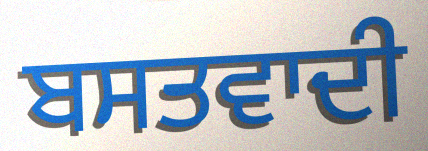
ਬਸਤਵਾਦੀ